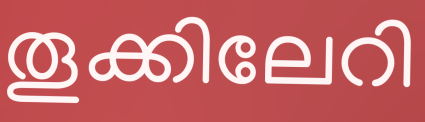
തൂക്കിലേറി